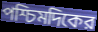
পশ্চিমদিকের